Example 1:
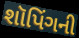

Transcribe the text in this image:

શૉપિંગની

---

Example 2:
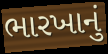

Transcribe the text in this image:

ભારખાનું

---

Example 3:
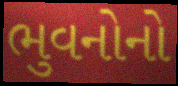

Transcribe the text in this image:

ભુવનોનો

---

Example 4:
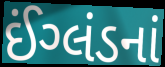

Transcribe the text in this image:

ઈંગ્લંડનાં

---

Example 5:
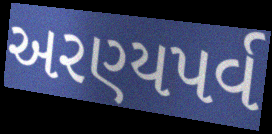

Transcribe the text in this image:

અરણ્યપર્વ